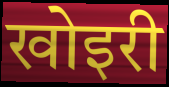
खोइरी